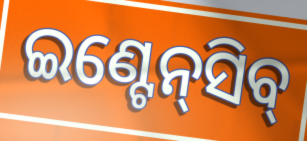
ଇଣ୍ଟେନ୍‍ସିବ୍